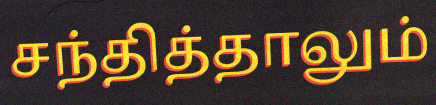
சந்தித்தாலும்